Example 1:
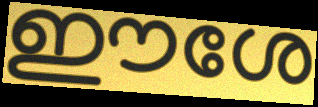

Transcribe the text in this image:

ഈശേ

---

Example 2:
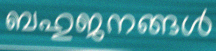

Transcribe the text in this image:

ബഹുജനങ്ങൾ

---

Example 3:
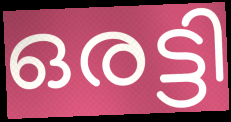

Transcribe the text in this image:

ഒരട്ടി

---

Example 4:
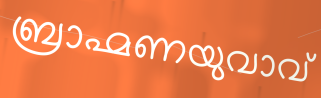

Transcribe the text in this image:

ബ്രാഹ്മണയുവാവ്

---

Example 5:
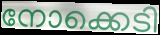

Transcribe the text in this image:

നോക്കെടി